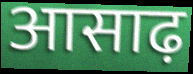
आसाढ़